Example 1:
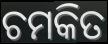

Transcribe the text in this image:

ଚମକିତ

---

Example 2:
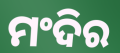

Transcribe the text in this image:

ମଂଦିର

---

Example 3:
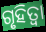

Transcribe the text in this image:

ଗୃହିତ୍ବା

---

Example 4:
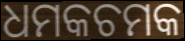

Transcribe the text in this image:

ଧମକଚମକ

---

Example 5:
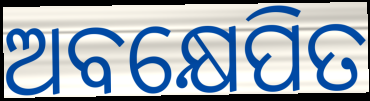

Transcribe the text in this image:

ଅବକ୍ଷେପିତ